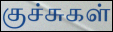
குச்சுகள்